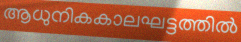
ആധുനികകാലഘട്ടത്തിൽ